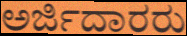
ಅರ್ಜಿದಾರರು